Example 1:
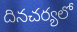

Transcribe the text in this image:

దినచర్యలో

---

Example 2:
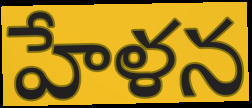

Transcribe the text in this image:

హేళన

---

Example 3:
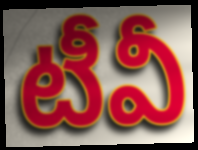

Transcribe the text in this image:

టీవీ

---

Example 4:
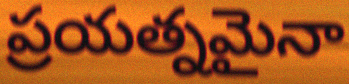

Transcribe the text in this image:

ప్రయత్నమైనా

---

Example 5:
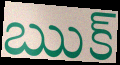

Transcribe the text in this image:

ఋక్